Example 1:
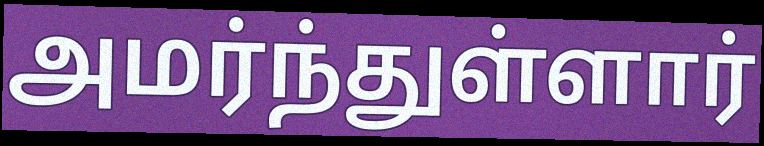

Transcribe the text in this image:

அமர்ந்துள்ளார்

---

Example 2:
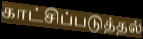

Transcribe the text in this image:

காட்சிப்படுத்தல்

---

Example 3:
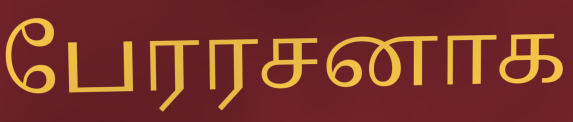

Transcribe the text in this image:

பேரரசனாக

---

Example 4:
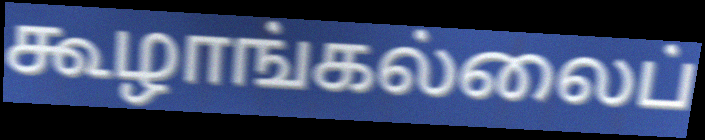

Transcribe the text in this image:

கூழாங்கல்லைப்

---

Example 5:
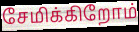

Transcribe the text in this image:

சேமிக்கிறோம்